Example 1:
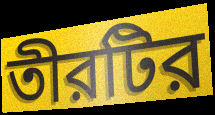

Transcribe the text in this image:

তীরটির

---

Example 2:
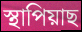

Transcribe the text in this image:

স্থাপিয়াছ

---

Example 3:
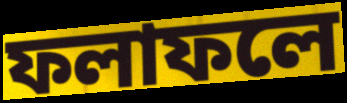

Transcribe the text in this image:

ফলাফলে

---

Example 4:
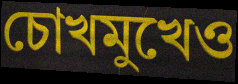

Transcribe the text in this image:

চোখমুখেও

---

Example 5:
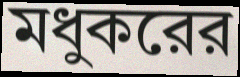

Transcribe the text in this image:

মধুকরের